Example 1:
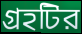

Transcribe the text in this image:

গ্রহটির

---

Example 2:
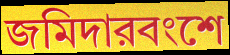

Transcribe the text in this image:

জমিদারবংশে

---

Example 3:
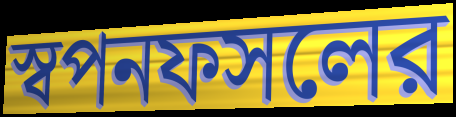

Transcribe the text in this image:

স্বপনফসলের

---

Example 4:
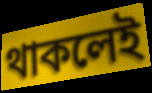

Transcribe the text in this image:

থাকলেই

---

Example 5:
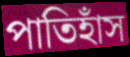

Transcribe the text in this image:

পাতিহাঁস